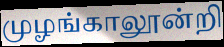
முழங்காலூன்றி